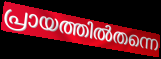
പ്രായത്തിൽതന്നെ